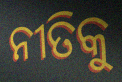
ନୀତିକୁ